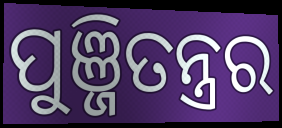
ପୁଞ୍ଜିତନ୍ତ୍ରର